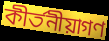
কীর্তনীয়াগণ